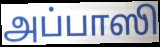
அப்பாஸி